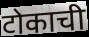
टोकाची